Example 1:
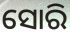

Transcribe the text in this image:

ସୋରି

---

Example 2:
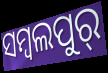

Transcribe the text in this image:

ସମ୍ବଲପୁର୍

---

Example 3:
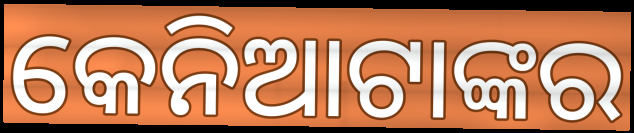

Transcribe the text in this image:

କେନିଆଟାଙ୍କର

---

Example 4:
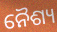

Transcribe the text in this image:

ନୈଶ୍ୟ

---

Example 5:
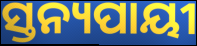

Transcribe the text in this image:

ସ୍ତନ୍ୟପାୟୀ